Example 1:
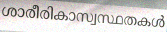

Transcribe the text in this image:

ശാരീരികാസ്വസ്ഥതകൾ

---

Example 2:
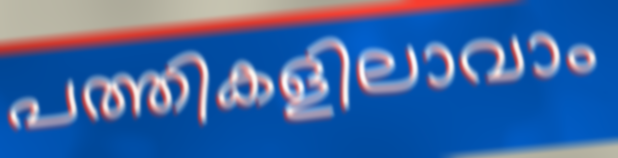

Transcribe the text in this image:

പത്തികളിലാവാം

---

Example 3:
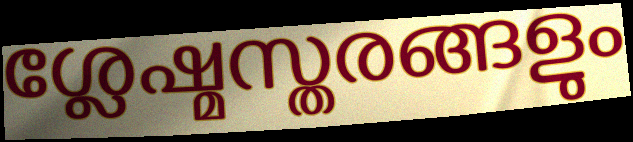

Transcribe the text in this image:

ശ്ലേഷ്മസ്തരങ്ങളും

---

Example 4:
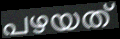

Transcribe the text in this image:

പഴയത്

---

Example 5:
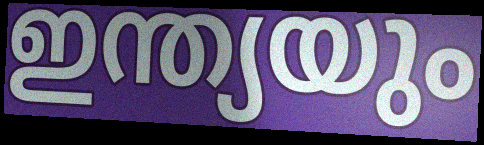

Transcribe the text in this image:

ഇന്ത്യയും